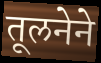
तूलनेने